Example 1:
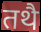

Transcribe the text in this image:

तथै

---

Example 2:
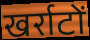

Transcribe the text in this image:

खर्राटों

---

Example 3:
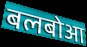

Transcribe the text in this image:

बलबोआ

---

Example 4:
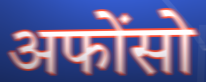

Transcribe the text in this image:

अफोंसो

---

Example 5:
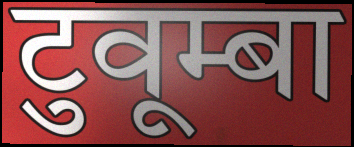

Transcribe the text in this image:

टुवूम्बा